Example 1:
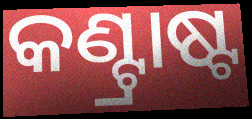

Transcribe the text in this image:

କଣ୍ଟ୍ରାଷ୍ଟ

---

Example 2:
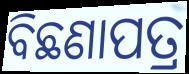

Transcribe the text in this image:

ବିଛଣାପତ୍ର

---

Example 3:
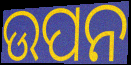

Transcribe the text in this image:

ଉପନ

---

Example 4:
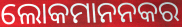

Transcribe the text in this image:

ଲୋକମାନନକର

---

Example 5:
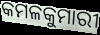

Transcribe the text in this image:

କମଳକୁମାରୀ